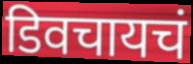
डिवचायचं